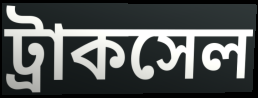
ট্রাকসেল